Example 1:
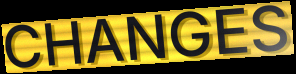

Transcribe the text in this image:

CHANGES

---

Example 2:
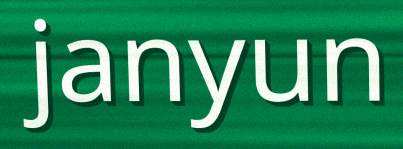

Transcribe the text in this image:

janyun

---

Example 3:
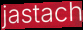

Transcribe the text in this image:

jastach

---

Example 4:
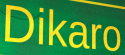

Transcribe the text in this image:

Dikaro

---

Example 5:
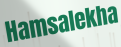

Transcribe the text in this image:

Hamsalekha